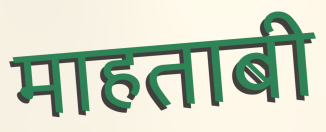
माहताबी